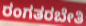
ರಂಗತರಬೇತಿ